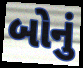
બોનું